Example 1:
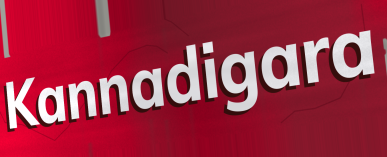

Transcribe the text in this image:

Kannadigara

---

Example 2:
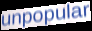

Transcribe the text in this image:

unpopular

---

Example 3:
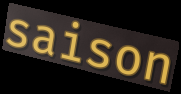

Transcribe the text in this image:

saison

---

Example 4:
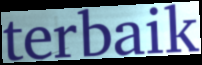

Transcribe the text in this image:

terbaik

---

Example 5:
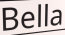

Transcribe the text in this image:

Bella